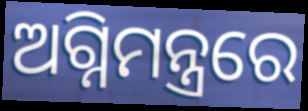
ଅଗ୍ନିମନ୍ତ୍ରରେ